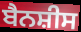
ਬੈਨਸ਼ੀਸ